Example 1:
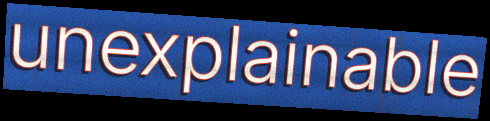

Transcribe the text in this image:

unexplainable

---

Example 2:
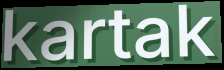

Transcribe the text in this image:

kartak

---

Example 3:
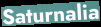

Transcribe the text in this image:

Saturnalia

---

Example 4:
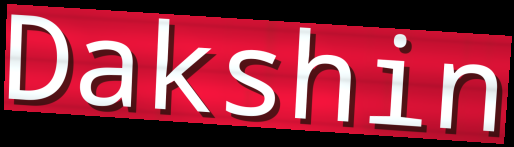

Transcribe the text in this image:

Dakshin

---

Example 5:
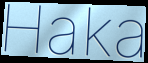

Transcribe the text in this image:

Haka